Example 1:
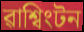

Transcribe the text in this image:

ৱাশ্বিংটন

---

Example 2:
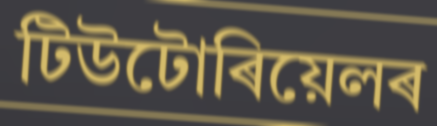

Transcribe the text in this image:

টিউটোৰিয়েলৰ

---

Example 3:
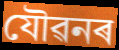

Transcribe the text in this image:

যৌৱনৰ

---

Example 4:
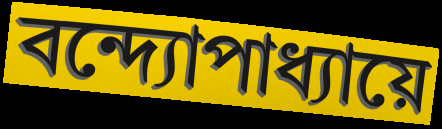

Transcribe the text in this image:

বন্দ্যোপাধ্যায়ে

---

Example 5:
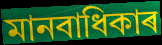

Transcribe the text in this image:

মানবাধিকাৰ